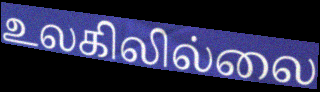
உலகிலில்லை